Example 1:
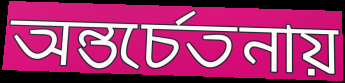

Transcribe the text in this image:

অন্তর্চেতনায়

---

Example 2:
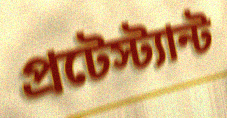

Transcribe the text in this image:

প্রটেস্ট্যান্ট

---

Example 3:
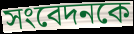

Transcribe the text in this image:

সংবেদনকে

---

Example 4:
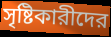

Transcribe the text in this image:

সৃষ্টিকারীদের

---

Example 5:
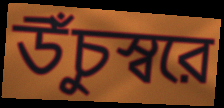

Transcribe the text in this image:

উঁচুস্বরে